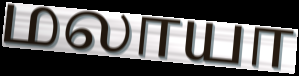
மலாயா